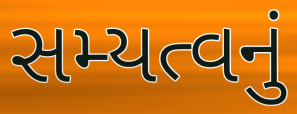
સમ્યત્વનું